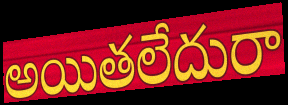
అయితలేదురా